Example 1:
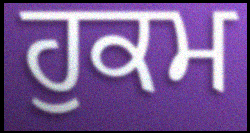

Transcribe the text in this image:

ਹੁਕਮ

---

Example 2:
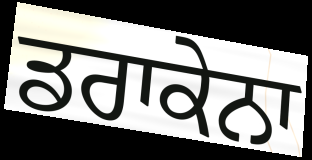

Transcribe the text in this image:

ਡਰਾਕੇਨਾ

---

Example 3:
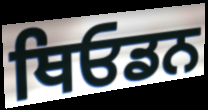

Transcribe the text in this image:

ਥਿਓਡਨ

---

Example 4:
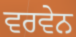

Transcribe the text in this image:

ਵਰਵੇਨ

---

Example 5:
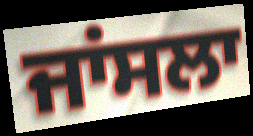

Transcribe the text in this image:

ਜਾਂਸਲਾ